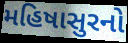
મહિષાસુરનો